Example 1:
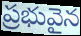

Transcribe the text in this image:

ప్రభువైన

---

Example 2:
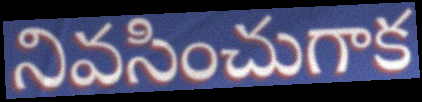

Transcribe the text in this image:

నివసించుగాక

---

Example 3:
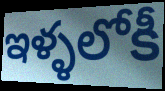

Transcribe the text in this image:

ఇళ్ళలోకీ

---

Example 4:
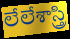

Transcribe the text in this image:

లేలేశాస్త్రి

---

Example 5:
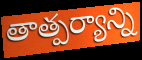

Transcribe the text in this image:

తాత్పర్యాన్ని